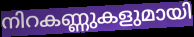
നിറകണ്ണുകളുമായി